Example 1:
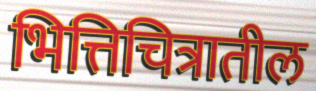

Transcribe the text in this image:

भित्तिचित्रातील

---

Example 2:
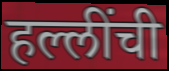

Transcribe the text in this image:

हल्लींची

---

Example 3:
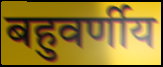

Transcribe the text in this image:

बहुवर्णीय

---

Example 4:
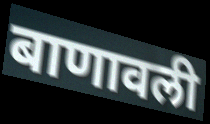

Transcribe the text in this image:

बाणावली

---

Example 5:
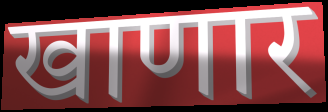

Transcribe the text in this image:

खाणार